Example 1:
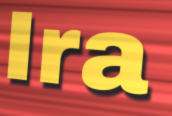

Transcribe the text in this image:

Ira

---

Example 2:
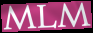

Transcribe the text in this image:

MLM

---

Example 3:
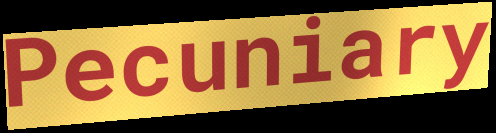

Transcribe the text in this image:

Pecuniary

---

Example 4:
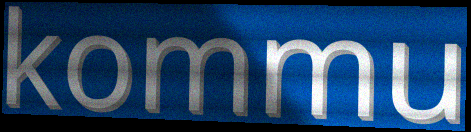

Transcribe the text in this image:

kommu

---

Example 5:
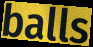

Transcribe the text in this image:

balls